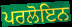
ਪਰਲੋਇਨ